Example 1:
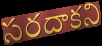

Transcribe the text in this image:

సరదాకని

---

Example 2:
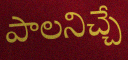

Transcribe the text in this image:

పాలనిచ్చే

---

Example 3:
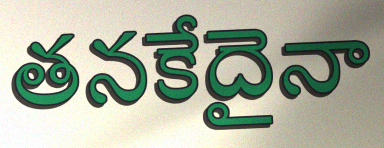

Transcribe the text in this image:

తనకేదైనా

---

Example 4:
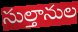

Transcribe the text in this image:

సుల్తానుల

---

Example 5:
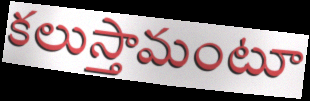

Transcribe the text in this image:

కలుస్తామంటూ